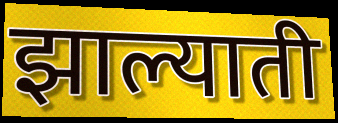
झाल्याती